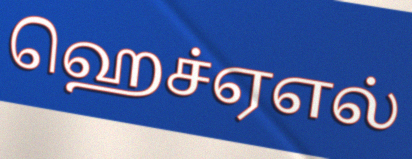
ஹெச்ஏஎல்